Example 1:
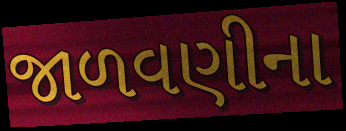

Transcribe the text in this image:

જાળવણીના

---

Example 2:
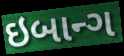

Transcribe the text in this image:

ઇબાન્ગ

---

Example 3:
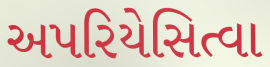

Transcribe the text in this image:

અપરિયેસિત્વા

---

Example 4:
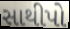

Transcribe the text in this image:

સાથીપો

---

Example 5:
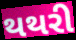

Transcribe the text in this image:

થથરી